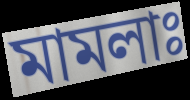
মামলাঃ